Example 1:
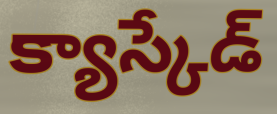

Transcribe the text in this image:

క్యాస్కేడ్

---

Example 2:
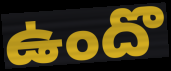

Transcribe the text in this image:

ఉందొ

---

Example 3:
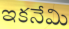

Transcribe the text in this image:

ఇకనేమి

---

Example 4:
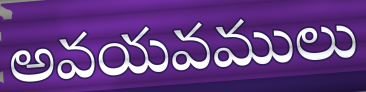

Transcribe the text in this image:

అవయవములు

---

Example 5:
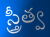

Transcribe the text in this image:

స్త్రీత్వ